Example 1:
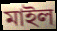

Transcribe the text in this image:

মাইল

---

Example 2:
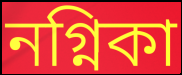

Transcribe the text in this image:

নগ্নিকা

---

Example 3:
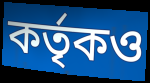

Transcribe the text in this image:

কর্তৃকও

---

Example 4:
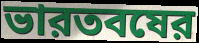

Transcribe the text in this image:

ভারতবষের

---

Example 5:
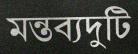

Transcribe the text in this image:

মন্তব্যদুটি